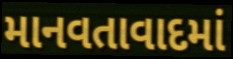
માનવતાવાદમાં